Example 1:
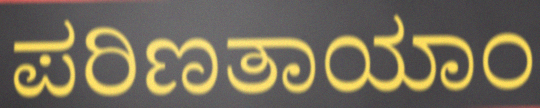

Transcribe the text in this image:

ಪರಿಣತಾಯಾಂ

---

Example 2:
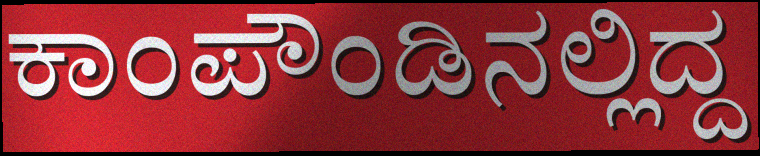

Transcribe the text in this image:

ಕಾಂಪೌಂಡಿನಲ್ಲಿದ್ದ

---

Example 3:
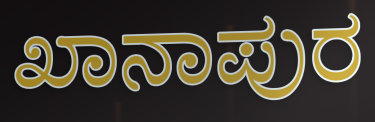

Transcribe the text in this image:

ಖಾನಾಪುರ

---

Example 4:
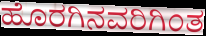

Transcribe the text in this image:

ಹೊರಗಿನವರಿಗಿಂತ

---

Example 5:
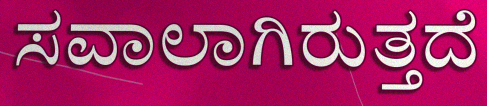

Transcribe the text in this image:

ಸವಾಲಾಗಿರುತ್ತದೆ